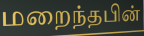
மறைந்தபின்